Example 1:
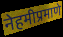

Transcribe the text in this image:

नेहमीप्रमाणे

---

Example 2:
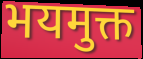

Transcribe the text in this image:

भयमुक्त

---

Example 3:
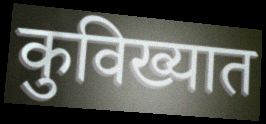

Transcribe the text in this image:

कुविख्यात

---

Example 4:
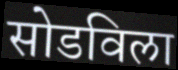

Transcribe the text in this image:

सोडविला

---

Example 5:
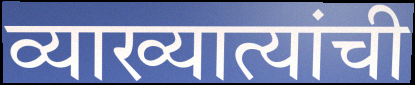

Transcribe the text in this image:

व्याख्यात्यांची